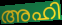
അഹി